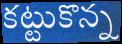
కట్టుకొన్న